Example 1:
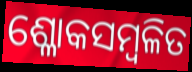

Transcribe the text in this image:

ଶ୍ଳୋକସମ୍ବଳିତ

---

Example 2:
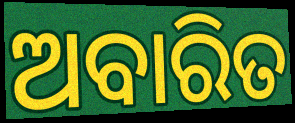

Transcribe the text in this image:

ଅବାରିତ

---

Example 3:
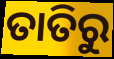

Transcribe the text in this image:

ତାତିରୁ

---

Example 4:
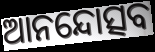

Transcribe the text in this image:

ଆନନ୍ଦୋତ୍ସବ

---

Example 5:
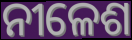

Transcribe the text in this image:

ନୀଳେଶ